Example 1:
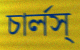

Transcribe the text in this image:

চার্লস্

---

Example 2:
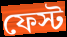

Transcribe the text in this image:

ফেস্ট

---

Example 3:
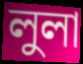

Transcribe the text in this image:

লুলা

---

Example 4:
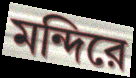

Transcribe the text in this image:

মন্দিরে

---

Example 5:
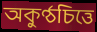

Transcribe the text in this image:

অকুণ্ঠচিত্তে